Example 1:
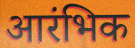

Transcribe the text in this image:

आरंभिक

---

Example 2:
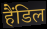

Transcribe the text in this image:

हैंडिल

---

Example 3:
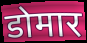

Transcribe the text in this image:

डोमार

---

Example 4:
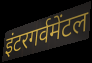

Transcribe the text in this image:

इंटरगर्वमेंटल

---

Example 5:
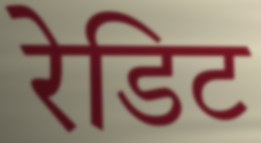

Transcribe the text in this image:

रेडिट